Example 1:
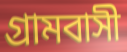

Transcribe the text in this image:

গ্রামবাসী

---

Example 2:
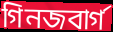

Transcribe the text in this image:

গিনজবার্গ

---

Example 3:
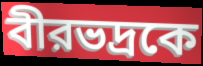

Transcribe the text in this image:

বীরভদ্রকে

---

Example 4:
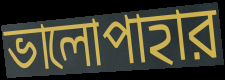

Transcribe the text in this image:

ভালোপাহার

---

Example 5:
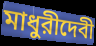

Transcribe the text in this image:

মাধুরীদেবী